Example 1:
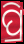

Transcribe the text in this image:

ପ୍ରି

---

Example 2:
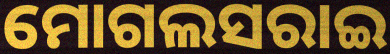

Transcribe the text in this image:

ମୋଗଲସରାଇ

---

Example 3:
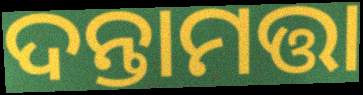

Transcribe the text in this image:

ଦନ୍ତାମତ୍ତା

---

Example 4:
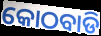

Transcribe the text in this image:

କୋଠବାଡି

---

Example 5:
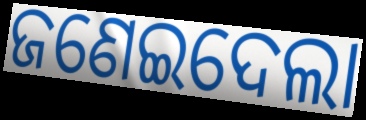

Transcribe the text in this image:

ଜଣେଇଦେଲା